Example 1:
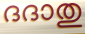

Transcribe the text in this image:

ദദാതു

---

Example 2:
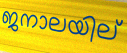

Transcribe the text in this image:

ജനാലയില്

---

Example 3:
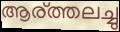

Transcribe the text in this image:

ആര്ത്തലച്ചു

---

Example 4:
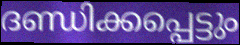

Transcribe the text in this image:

ദണ്ഡിക്കപ്പെട്ടും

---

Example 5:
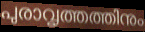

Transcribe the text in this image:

പുരാവൃത്തത്തിനും